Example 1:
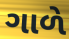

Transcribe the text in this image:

ગાળે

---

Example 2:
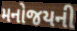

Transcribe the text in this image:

મનોજયની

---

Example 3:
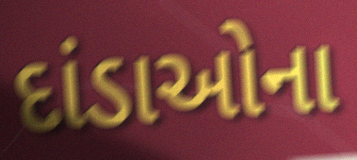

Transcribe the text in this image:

દાંડાઓના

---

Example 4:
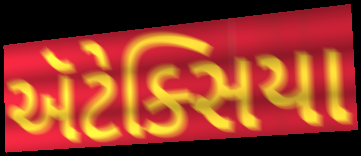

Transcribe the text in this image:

ઍટેક્સિયા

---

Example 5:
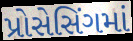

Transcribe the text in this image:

પ્રોસેસિંગમાં